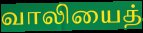
வாலியைத்